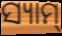
ସ୍ୟାମ୍